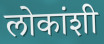
लोकांशी